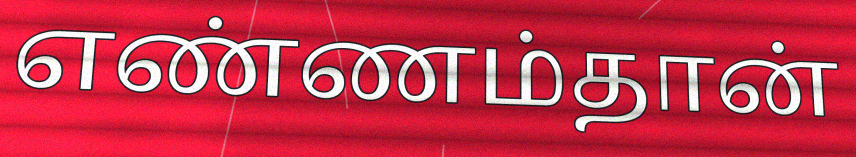
எண்ணம்தான்